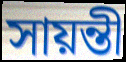
সায়ন্তী